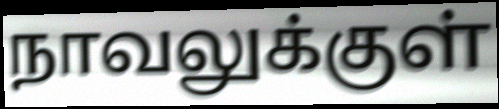
நாவலுக்குள்